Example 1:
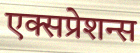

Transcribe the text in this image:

एक्सप्रेशन्स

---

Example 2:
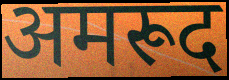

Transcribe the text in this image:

अमरूद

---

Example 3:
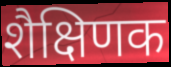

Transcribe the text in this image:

शैक्षिणक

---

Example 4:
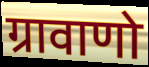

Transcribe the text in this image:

ग्रावाणो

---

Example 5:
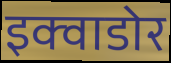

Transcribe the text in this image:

इक्‍वाडोर